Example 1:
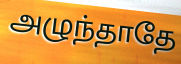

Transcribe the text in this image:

அழுந்தாதே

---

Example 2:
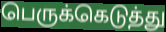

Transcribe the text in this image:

பெருக்கெடுத்து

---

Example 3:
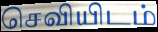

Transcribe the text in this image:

செவியிடம்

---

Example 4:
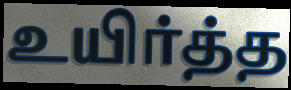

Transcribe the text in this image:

உயிர்த்த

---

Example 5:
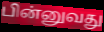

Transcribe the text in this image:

பின்னுவது